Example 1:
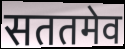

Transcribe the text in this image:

सततमेव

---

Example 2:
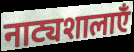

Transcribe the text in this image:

नाट्यशालाएँ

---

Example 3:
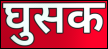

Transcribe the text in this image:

घुसक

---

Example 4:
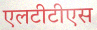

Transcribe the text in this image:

एलटीटीएस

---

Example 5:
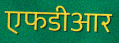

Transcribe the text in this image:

एफडीआर